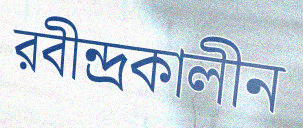
রবীন্দ্রকালীন